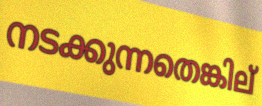
നടക്കുന്നതെങ്കില്